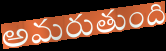
అమరుతుంది